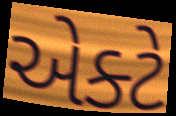
એક્ટે